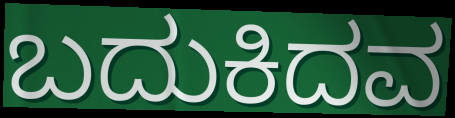
ಬದುಕಿದವ